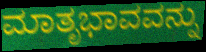
ಮಾತೃಭಾವವನ್ನು